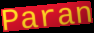
Paran